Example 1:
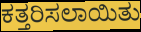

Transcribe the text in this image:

ಕತ್ತರಿಸಲಾಯಿತು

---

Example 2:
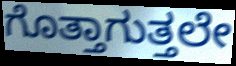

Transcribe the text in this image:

ಗೊತ್ತಾಗುತ್ತಲೇ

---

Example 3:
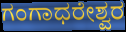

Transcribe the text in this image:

ಗಂಗಾಧರೇಶ್ವರ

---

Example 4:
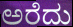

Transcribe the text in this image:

ಅರೆದು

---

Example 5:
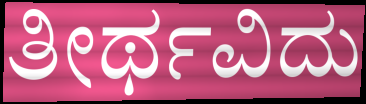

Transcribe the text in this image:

ತೀರ್ಥವಿದು